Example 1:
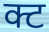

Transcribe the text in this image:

क्ट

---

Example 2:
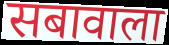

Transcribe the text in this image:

सबावाला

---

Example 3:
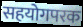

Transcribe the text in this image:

सहयोगपरक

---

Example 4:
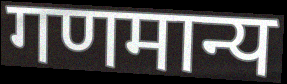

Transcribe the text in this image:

गणमान्‍य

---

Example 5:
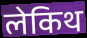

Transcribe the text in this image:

लेकिथ